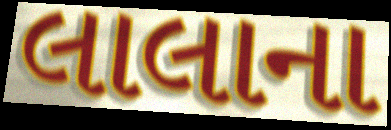
લાલાના